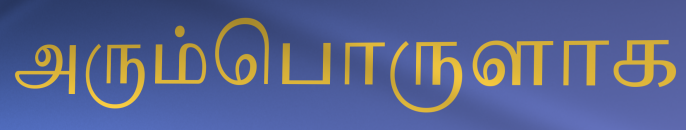
அரும்பொருளாக